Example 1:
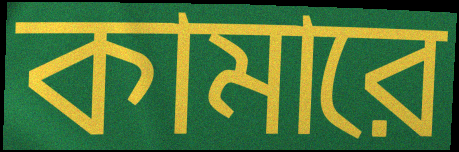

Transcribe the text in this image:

কামারে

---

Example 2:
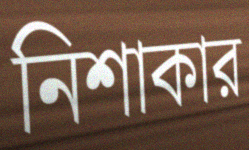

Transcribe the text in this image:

নিশাকার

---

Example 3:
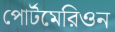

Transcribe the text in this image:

পোর্টমেরিওন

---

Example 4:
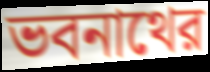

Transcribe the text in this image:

ভবনাথের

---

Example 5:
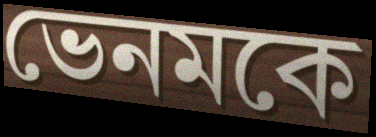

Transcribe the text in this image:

ভেনমকে